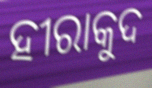
ହୀରାକୁଦ